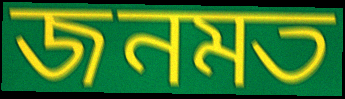
জনমত